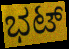
ಭಟ್